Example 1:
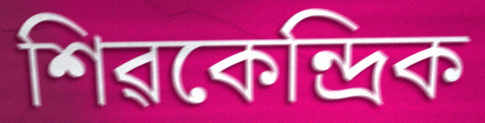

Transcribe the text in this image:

শিৱকেন্দ্ৰিক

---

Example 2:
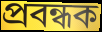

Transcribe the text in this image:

প্ৰবন্ধক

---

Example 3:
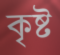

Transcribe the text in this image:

কৃষ্ট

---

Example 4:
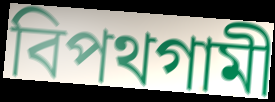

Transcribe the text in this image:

বিপথগামী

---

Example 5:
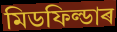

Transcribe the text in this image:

মিডফিল্ডাৰ